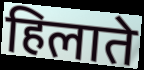
हिलाते